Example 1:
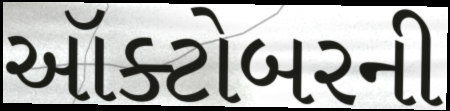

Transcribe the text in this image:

ઑક્ટોબરની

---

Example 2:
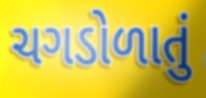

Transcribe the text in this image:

ચગડોળાતું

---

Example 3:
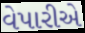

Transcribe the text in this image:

વેપારીએ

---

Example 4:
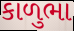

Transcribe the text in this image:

કાળુભા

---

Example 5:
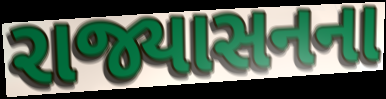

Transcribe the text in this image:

રાજ્યાસનના